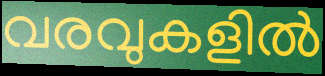
വരവുകളിൽ